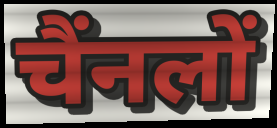
चैंनलों